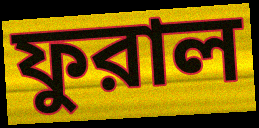
ফুরাল